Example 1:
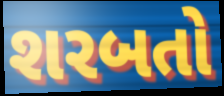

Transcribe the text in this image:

શરબતો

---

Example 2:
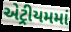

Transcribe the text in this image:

એટ્રીયમમાં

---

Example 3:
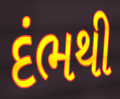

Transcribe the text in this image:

દંભથી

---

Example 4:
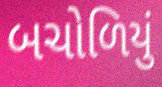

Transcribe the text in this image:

બચોળિયું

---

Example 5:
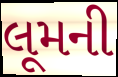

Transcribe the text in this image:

લૂમની